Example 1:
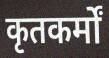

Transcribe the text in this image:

कृतकर्मों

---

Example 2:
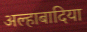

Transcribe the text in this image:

अल्हाबादिया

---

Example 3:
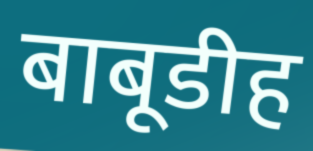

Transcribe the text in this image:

बाबूडीह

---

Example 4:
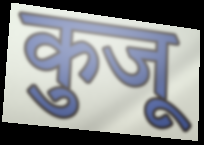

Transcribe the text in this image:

कुजू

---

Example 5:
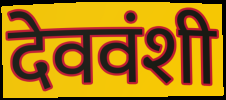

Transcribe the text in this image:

देववंशी